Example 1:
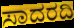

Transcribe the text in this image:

ಸಾದರದಿ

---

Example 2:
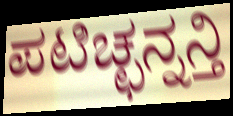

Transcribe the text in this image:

ಪಟಿಚ್ಛನ್ನನ್ತಿ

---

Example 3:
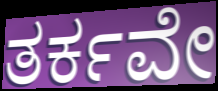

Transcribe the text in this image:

ತರ್ಕವೇ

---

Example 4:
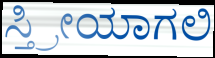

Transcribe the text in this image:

ಸ್ತ್ರೀಯಾಗಲಿ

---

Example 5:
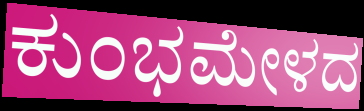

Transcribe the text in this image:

ಕುಂಭಮೇಳದ